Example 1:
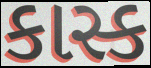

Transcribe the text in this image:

કાસ્ક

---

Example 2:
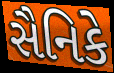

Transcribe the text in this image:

સૈનિકે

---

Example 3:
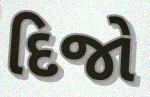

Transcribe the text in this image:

દિજો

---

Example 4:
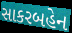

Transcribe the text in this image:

સાકરબહેન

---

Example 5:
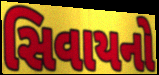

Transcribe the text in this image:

સિવાયનો